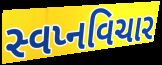
સ્વપ્નવિચાર